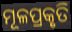
ମୂଳପ୍ରକୃତି